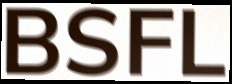
BSFL